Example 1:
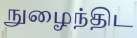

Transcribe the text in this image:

நுழைந்திட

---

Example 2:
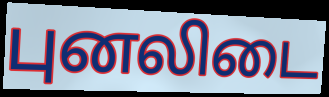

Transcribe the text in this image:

புனலிடை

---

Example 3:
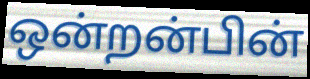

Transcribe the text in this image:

ஒன்றன்பின்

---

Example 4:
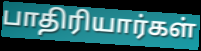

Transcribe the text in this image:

பாதிரியார்கள்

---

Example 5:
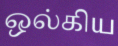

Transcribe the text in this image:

ஒல்கிய